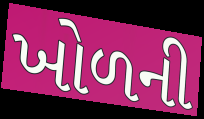
ખોળની